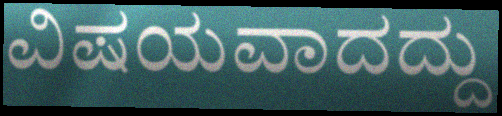
ವಿಷಯವಾದದ್ದು